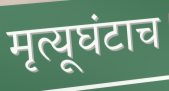
मृत्यूघंटाच